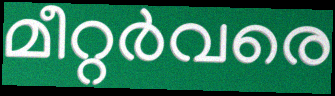
മീറ്റർവരെ